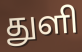
துளி